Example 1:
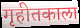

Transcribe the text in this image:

गृहीतकाला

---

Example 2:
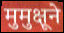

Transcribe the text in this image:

मुमुक्षूने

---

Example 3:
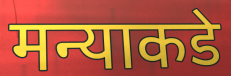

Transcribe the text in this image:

मन्याकडे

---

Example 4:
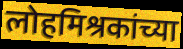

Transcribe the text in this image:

लोहमिश्रकांच्या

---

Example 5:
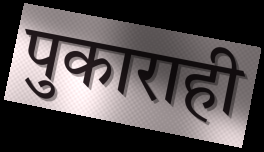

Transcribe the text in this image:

पुकाराही